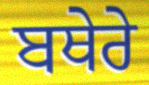
ਬਥੇਰੇ